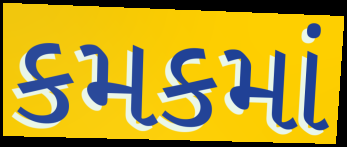
કમકમાં